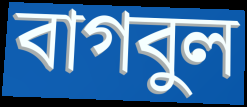
বাগবুল